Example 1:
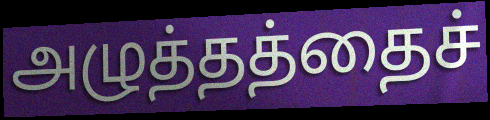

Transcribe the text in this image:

அழுத்தத்தைச்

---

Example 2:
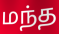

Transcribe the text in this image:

மந்த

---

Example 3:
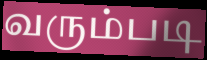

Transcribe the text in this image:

வரும்படி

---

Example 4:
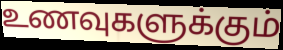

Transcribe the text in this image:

உணவுகளுக்கும்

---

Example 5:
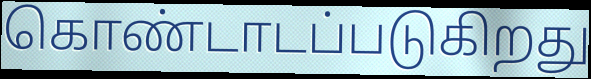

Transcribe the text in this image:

கொண்டாடப்படுகிறது